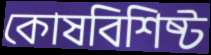
কোষবিশিষ্ট